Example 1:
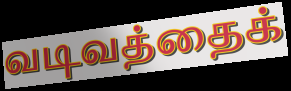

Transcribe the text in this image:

வடிவத்தைக்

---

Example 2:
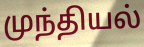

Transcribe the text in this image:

முந்தியல்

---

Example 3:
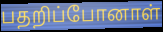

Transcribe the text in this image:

பதறிப்போனாள்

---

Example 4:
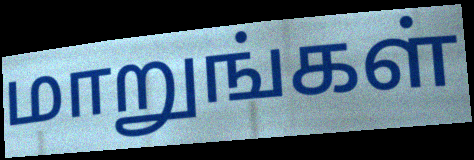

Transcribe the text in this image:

மாறுங்கள்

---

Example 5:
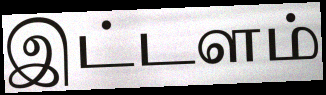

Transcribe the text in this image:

இட்டளம்